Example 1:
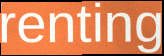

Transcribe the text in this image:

renting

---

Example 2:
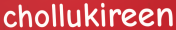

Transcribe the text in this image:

chollukireen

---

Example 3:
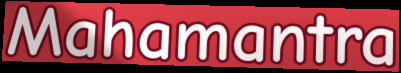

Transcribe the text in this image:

Mahamantra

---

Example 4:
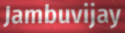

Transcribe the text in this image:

Jambuvijay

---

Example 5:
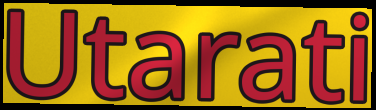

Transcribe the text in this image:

Utarati